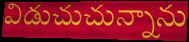
విడుచుచున్నాను